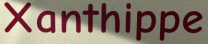
Xanthippe